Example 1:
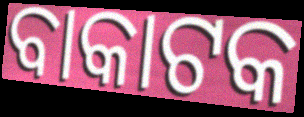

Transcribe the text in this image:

ବାକାଟକ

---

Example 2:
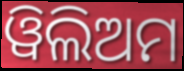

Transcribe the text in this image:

ୱିଲିଅମ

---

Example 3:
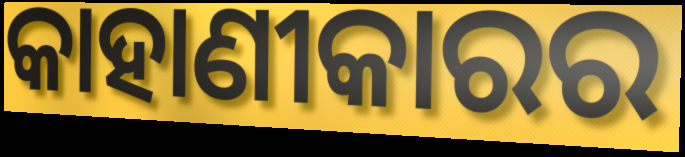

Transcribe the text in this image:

କାହାଣୀକାରର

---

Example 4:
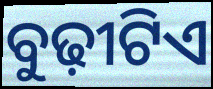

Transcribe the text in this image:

ବୁଢ଼ୀଟିଏ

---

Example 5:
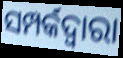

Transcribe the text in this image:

ସମ୍ପର୍କଦ୍ୱାରା